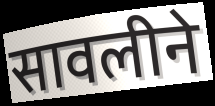
सावलीने